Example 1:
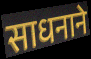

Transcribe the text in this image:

साधनाने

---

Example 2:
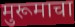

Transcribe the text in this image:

मुरूमाचा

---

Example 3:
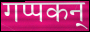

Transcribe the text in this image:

गप्पकन्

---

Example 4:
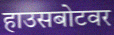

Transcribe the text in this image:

हाउसबोटवर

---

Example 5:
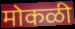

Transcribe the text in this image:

मोकळी